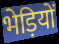
भेड़ियों